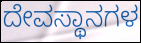
ದೇವಸ್ಥಾನಗಳ